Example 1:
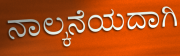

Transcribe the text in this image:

ನಾಲ್ಕನೆಯದಾಗಿ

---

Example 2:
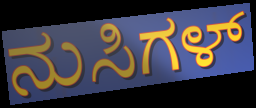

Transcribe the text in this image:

ನುಸಿಗಳ್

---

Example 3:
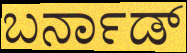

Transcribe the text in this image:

ಬರ್ನಾಡ್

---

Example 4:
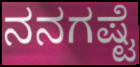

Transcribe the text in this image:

ನನಗಷ್ಟೆ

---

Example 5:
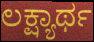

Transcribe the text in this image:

ಲಕ್ಷ್ಯಾರ್ಥ